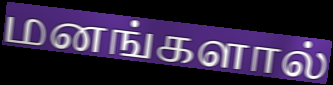
மனங்களால்